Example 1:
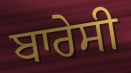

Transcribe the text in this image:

ਬਾਰੇਸੀ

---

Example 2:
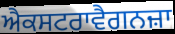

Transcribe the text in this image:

ਐਕਸਟਰਾਵੈਗਨਜ਼ਾ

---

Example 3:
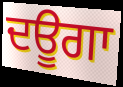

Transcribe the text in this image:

ਦਊਗਾ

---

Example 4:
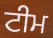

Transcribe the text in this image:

ਟੀਮ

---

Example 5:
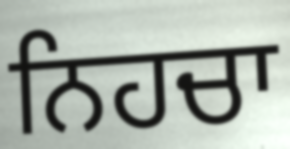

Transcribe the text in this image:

ਨਿਹਚਾ